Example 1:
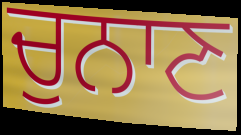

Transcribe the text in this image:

ਚੁਨਾਣ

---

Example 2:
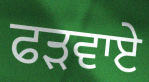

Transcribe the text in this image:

ਫੜਵਾਏ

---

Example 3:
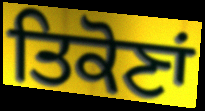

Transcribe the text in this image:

ਤਿਕੋਣਾਂ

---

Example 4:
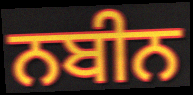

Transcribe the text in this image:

ਨਬੀਨ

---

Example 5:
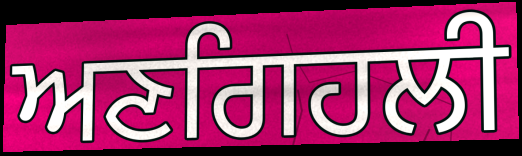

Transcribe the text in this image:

ਅਣਗਿਹਲੀ